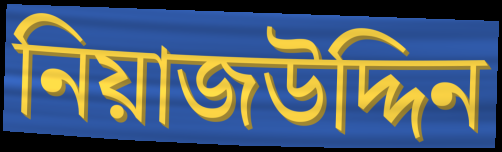
নিয়াজউদ্দিন